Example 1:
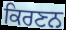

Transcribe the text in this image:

ਕਿਰਣਨ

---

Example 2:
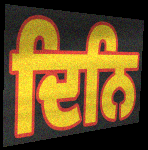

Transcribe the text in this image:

ਦਿਨਿ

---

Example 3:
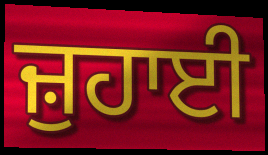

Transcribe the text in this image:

ਜ਼ੁਹਾਈ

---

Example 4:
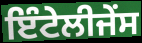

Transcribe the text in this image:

ਇੰਟੇਲੀਜੇੰਸ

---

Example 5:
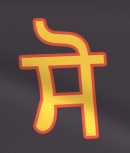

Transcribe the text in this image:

ਸੋ